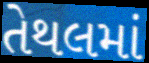
તેથલમાં